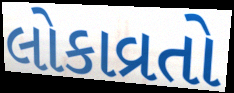
લોકાવ્રતો